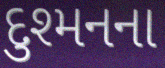
દુશ્મનના